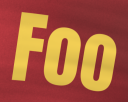
Foo